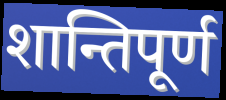
शान्तिपूर्ण